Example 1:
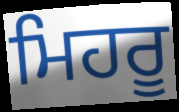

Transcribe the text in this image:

ਮਿਹਰੂ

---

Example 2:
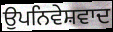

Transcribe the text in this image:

ਉਪਨਿਵੇਸ਼ਵਾਦ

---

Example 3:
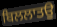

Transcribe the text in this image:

ਬਿਲਲਾਤਉ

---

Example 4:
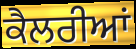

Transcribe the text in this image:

ਕੈਲਰੀਆਂ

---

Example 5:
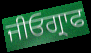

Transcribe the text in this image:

ਜੀਓਗ੍ਰਾਫ